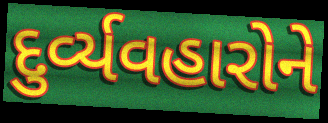
દુર્વ્યવહારોને